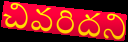
చివరిదని